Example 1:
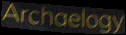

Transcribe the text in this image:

Archaelogy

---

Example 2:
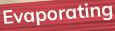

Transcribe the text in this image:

Evaporating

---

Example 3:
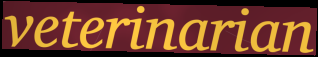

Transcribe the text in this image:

veterinarian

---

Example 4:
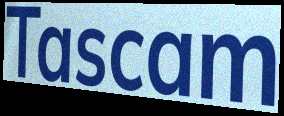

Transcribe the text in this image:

Tascam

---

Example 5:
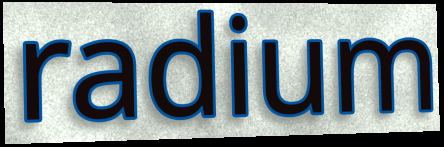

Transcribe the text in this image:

radium